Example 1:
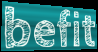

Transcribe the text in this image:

befit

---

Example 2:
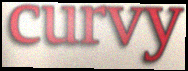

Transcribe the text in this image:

curvy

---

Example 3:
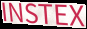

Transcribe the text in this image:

INSTEX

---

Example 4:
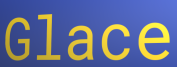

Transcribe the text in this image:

Glace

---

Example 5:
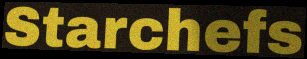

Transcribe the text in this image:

Starchefs